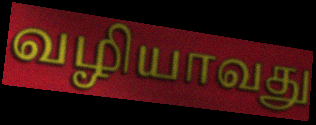
வழியாவது